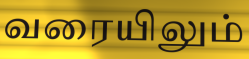
வரையிலும்